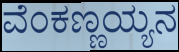
ವೆಂಕಣ್ಣಯ್ಯನ